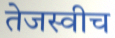
तेजस्वीच